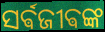
ସର୍ଵଜୀଵଙ୍କ